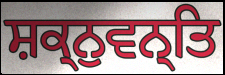
ਸ਼ਕ੍ਨੁਵਨ੍ਤਿ